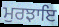
ਮੁਰਝਾਇ